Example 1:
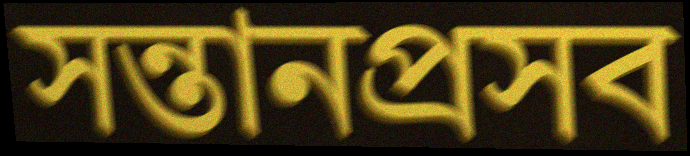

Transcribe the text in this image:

সন্তানপ্রসব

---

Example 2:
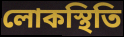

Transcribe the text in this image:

লোকস্থিতি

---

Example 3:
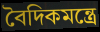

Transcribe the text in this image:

বৈদিকমন্ত্রে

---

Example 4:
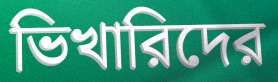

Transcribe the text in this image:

ভিখারিদের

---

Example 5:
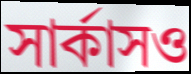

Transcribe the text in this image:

সার্কাসও